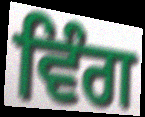
ਵਿੰਗ